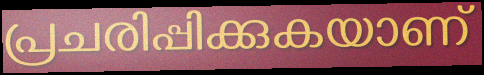
പ്രചരിപ്പിക്കുകയാണ്